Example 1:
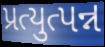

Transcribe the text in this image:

પ્રત્યુત્પન્ન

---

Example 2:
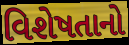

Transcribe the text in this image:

વિશેષતાનો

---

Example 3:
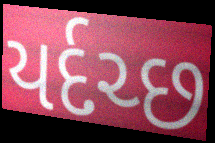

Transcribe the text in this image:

યર્દચ્છ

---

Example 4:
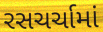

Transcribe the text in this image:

રસચર્ચામાં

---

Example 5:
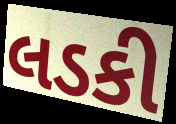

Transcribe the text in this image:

લડકી